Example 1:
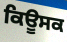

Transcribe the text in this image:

ਕਿਊਸਕ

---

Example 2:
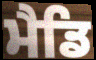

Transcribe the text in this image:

ਮੈਡਿ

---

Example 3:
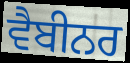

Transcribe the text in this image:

ਵੈਬੀਨਰ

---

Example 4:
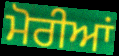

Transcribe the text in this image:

ਮੋਰੀਆਂ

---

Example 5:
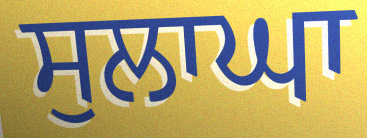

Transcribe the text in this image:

ਸੁਲਾਘਾ